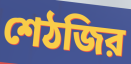
শেঠজির